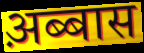
अ़ब्बास